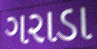
ગરાડા